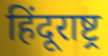
हिंदूराष्ट्र